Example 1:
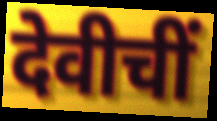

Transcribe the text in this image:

देवीचीं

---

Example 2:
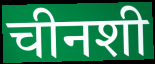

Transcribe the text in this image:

चीनशी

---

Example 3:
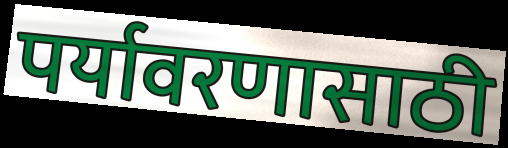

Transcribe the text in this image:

पर्यावरणासाठी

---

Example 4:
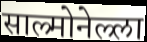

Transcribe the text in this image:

साल्मोनेल्ला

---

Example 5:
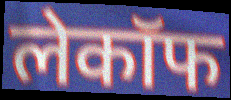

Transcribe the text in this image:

लेकॉफ